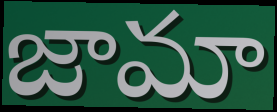
జామా